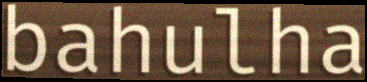
bahulha